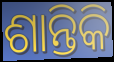
ଶାନ୍ତିକି